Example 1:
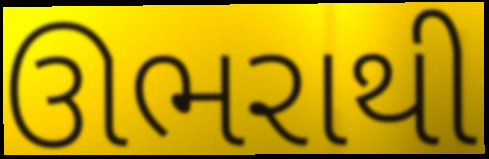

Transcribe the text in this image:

ઊભરાથી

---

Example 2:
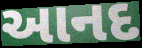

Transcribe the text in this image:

આનદ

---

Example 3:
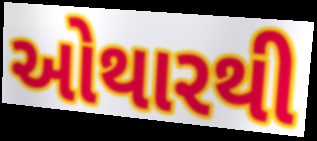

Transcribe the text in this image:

ઓથારથી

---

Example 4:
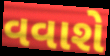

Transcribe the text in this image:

વવાશે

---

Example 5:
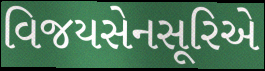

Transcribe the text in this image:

વિજયસેનસૂરિએ